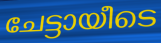
ചേട്ടായീടെ